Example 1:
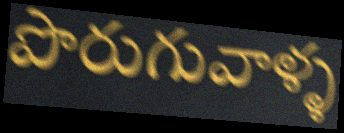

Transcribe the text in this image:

పొరుగువాళ్ళ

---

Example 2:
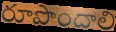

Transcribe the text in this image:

రూపొందాలి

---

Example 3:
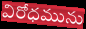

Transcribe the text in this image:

విరోధమును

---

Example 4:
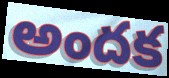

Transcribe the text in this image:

అందక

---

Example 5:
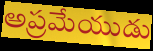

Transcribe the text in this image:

అప్రమేయుడు